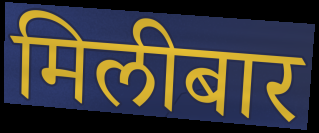
मिलीबार